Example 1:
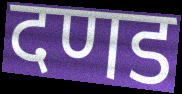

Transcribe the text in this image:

दणड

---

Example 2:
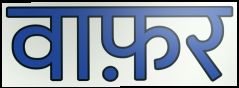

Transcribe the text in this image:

वाफ़र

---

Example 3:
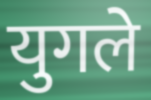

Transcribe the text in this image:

युगले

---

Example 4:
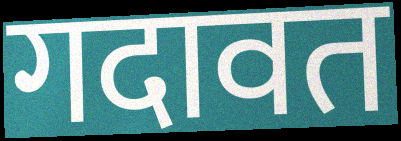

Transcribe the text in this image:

गदावत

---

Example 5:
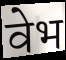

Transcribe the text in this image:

वेभ